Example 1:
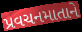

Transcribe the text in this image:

પ્રવચનમાતાને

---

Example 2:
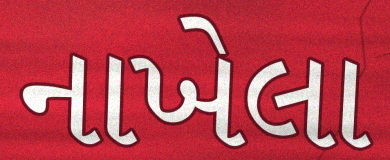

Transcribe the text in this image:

નાખેલા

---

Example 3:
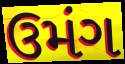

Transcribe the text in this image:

ઉમંગ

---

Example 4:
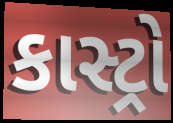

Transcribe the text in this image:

કાસ્ટ્રો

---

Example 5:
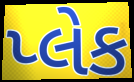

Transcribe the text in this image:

પ્લેક